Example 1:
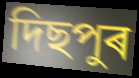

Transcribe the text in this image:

দিছপুৰ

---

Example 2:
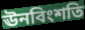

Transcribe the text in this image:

ঊনবিংশতি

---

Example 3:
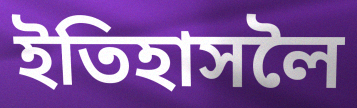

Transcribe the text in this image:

ইতিহাসলৈ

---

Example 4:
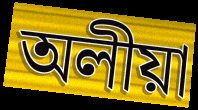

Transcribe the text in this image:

অলীয়া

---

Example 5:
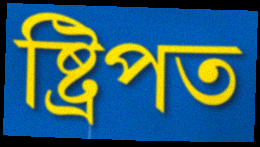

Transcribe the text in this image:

ষ্ট্ৰিপত